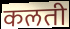
कलती